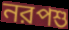
নরপশু